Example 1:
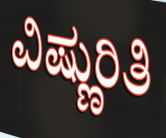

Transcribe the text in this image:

ವಿಷ್ಣುರಿತಿ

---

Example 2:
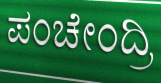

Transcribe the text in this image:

ಪಂಚೇಂದ್ರಿ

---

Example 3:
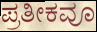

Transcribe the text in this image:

ಪ್ರತೀಕವೂ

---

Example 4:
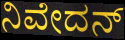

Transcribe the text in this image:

ನಿವೇದನ್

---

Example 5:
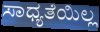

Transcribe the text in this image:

ಸಾಧ್ಯತೆಯಿಲ್ಲ